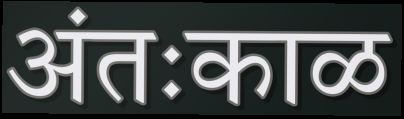
अंतःकाळ